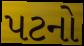
પટનો